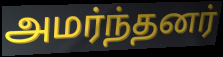
அமர்ந்தனர்